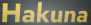
Hakuna